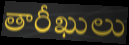
తారీఖులు